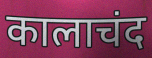
कालाचंद